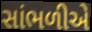
સાંભળીએ